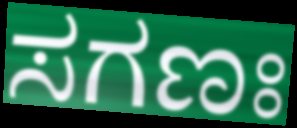
ಸಗಣಃ